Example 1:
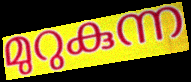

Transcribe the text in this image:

മുറുകുന്ന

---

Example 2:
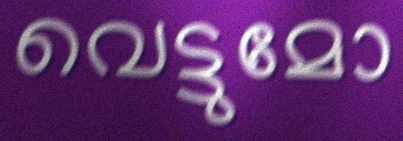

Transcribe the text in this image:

വെട്ടുമോ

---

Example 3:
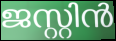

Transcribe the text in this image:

ജസ്റ്റിൻ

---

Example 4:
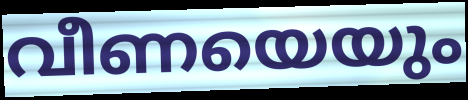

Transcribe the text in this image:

വീണയെയും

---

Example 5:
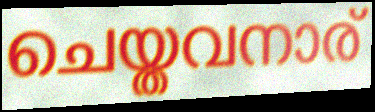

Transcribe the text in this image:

ചെയ്തവനാര്